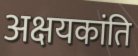
अक्षयकांति